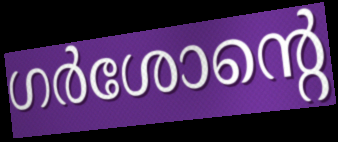
ഗർശോന്റെ